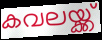
കവലയ്ക്ക്